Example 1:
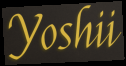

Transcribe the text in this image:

Yoshii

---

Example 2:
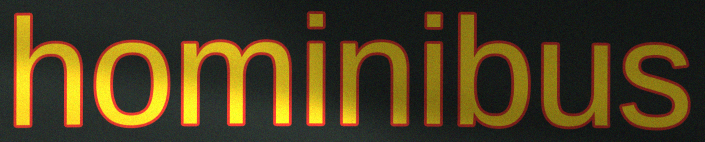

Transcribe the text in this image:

hominibus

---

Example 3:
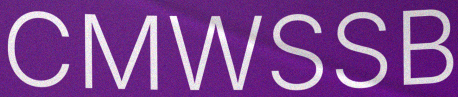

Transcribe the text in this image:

CMWSSB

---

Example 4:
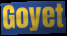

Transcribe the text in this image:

Goyet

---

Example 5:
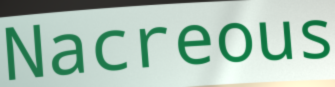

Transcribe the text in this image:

Nacreous